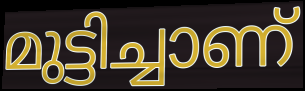
മുട്ടിച്ചാണ്